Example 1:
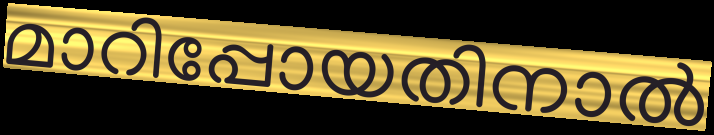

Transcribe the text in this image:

മാറിപ്പോയതിനാൽ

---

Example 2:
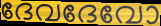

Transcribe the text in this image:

ദേവദേവോ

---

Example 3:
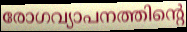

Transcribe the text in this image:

രോഗവ്യാപനത്തിന്റെ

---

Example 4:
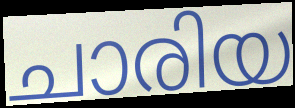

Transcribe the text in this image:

ചാരിയ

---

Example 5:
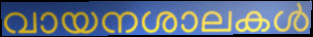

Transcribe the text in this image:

വായനശാലകൾ